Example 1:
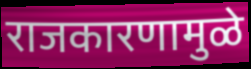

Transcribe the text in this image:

राजकारणामुळे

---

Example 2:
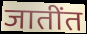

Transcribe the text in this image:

जातींत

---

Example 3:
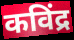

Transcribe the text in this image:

कविंद्र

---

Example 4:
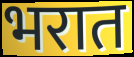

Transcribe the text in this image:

भरात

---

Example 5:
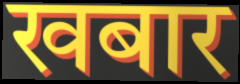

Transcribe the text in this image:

खबार